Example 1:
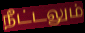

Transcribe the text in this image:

நீட்டலும்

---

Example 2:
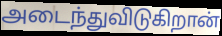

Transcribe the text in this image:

அடைந்துவிடுகிறான்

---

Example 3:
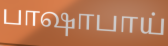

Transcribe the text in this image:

பாஷாபாய்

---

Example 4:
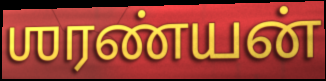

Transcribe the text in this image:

ஶரண்யன்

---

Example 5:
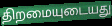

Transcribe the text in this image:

திறமையுடையது